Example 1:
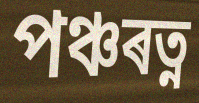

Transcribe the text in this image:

পঞ্চৰত্ন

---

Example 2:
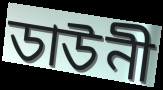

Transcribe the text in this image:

ডাউনী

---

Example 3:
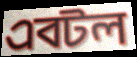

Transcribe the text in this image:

এবটল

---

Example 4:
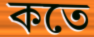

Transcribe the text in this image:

কতে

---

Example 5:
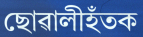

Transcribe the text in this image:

ছোৱালীহঁতক